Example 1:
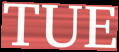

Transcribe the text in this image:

TUE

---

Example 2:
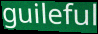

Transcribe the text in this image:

guileful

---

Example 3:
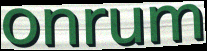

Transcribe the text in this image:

onrum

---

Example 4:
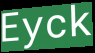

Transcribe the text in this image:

Eyck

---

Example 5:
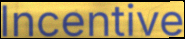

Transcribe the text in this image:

Incentive